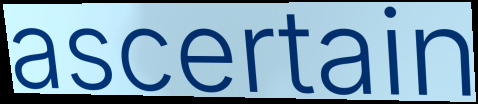
ascertain